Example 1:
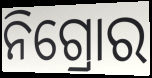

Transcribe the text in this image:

ନିଗ୍ରୋର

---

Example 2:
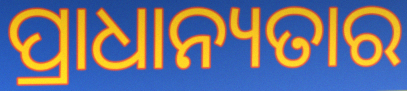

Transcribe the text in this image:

ପ୍ରାଧାନ୍ୟତାର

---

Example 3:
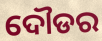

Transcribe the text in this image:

ଦୌଡର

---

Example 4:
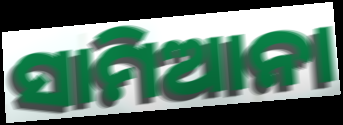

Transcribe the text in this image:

ସାମିଆନା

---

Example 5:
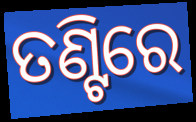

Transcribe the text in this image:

ତଣ୍ଟିରେ